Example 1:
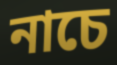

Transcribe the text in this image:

নাচে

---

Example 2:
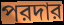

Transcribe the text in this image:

পরদার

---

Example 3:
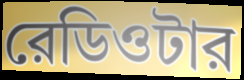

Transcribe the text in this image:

রেডিওটার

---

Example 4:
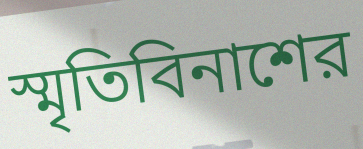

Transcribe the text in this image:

স্মৃতিবিনাশের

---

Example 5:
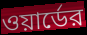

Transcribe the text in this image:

ওয়ার্ডের